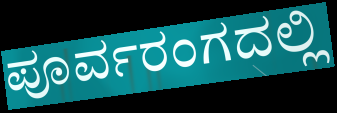
ಪೂರ್ವರಂಗದಲ್ಲಿ